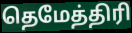
தெமேத்திரி